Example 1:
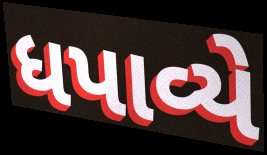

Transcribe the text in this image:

ધપાવ્યે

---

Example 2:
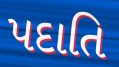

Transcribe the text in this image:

પદાતિ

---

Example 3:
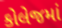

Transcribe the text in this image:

કોલેજમાં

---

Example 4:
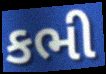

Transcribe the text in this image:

કભી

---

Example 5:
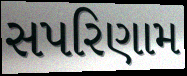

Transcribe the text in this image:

સપરિણામ